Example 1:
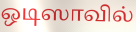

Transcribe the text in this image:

ஒடிஸாவில்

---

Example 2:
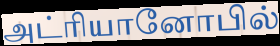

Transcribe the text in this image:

அட்ரியானோபில்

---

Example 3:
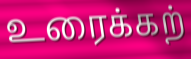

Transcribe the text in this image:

உரைக்கற்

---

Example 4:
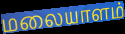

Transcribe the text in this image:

மலையாளம்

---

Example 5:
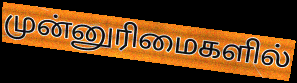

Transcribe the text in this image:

முன்னுரிமைகளில்